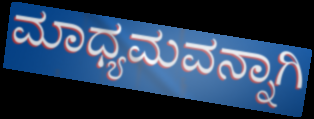
ಮಾಧ್ಯಮವನ್ನಾಗಿ